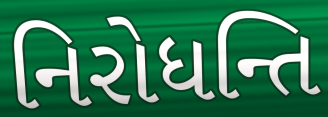
નિરોધન્તિ